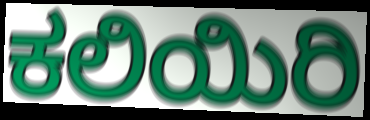
ಕಲಿಯಿರಿ